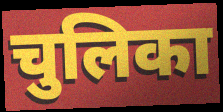
चुलिका